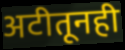
अटीतूनही